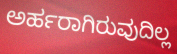
ಅರ್ಹರಾಗಿರುವುದಿಲ್ಲ